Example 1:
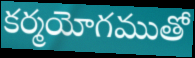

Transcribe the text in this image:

కర్మయోగముతో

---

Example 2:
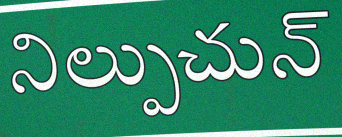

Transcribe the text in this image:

నిల్పుచున్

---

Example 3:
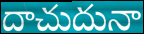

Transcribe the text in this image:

దాచుదునా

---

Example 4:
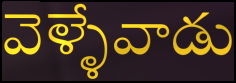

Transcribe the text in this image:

వెళ్ళేవాడు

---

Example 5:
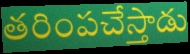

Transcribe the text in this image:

తరింపచేస్తాడు